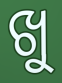
ଖୁ